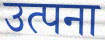
उत्पना